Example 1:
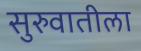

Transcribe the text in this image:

सुरुवातीला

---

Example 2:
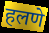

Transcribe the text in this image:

हलणे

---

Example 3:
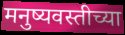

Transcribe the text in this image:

मनुष्यवस्तीच्या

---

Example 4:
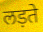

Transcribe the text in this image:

लड़ते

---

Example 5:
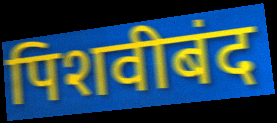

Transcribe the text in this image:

पिशवीबंद